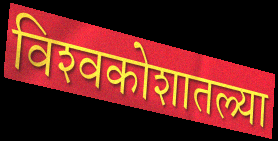
विश्वकोशातल्या